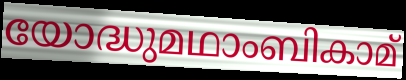
യോദ്ധുമഥാംബികാമ്